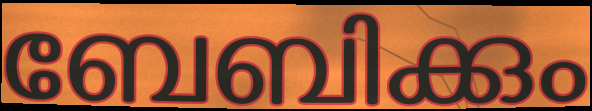
ബേബിക്കും